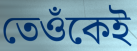
তেওঁকেই